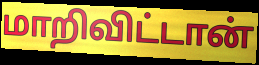
மாறிவிட்டான்